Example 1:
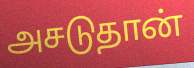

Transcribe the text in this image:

அசடுதான்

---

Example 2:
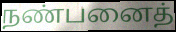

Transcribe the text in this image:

நண்பனைத்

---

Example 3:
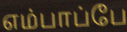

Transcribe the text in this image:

எம்பாப்பே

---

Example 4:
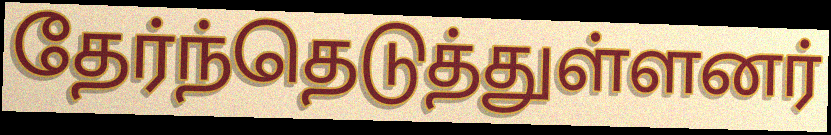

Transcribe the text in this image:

தேர்ந்தெடுத்துள்ளனர்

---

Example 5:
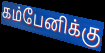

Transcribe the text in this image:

கம்பேனிக்கு